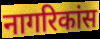
नागरिकांस